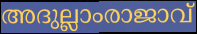
അദുല്ലാംരാജാവ്